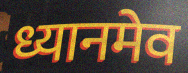
ध्यानमेव